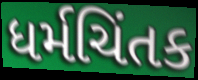
ધર્મચિંતક